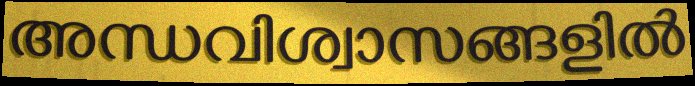
അന്ധവിശ്വാസങ്ങളിൽ